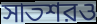
সাতশরও